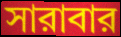
সারাবার